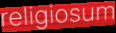
religiosum